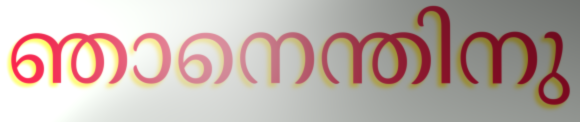
ഞാനെന്തിനു